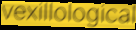
vexillological